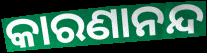
କାରଣାନନ୍ଦ